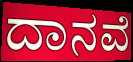
ದಾನವೆ